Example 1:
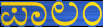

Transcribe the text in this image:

ಪಾಲಂ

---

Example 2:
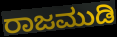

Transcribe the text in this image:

ರಾಜಮುಡಿ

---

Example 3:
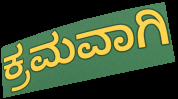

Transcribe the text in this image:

ಕ್ರಮವಾಗಿ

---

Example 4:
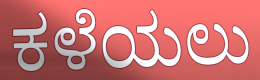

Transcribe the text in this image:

ಕಳೆಯಲು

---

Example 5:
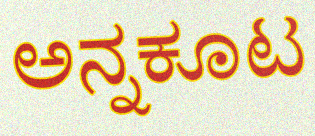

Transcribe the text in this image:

ಅನ್ನಕೂಟ